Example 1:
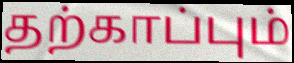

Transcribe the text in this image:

தற்காப்பும்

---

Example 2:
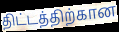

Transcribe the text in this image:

திட்டத்திற்கான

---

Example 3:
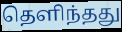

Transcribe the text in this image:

தெளிந்தது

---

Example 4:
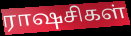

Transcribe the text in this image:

ராஷசிகள்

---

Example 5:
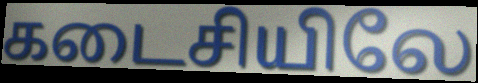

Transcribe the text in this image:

கடைசியிலே